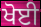
ਖੋਈ